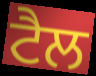
ਟੈਲ